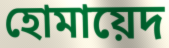
হোমায়েদ